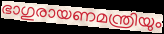
ഭാഗുരായണമന്ത്രിയും